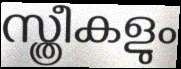
സ്ത്രീകളും